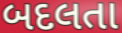
બદલતા